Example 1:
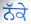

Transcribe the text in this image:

ਨੱਕੇ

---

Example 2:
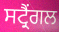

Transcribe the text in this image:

ਸਟ੍ਰੈਂਗਲ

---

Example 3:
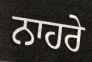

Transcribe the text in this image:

ਨਾਹਰੇ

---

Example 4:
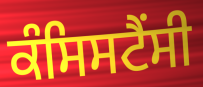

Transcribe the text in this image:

ਕੰਸਿਸਟੈਂਸੀ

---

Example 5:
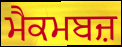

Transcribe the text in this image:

ਮੈਕਮਬਜ਼